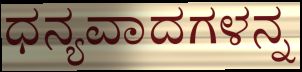
ಧನ್ಯವಾದಗಳನ್ನ